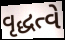
વૃદ્ધત્વે